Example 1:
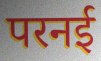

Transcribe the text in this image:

परनई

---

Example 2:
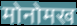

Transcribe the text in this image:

मोनोमख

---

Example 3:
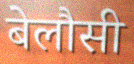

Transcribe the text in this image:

बेलौसी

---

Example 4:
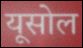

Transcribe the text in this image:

यूसोल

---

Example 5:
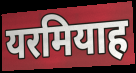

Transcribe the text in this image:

यरमियाह